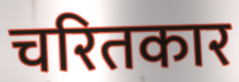
चरितकार